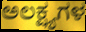
ಅಲಕ್ಷ್ಯಗಳ